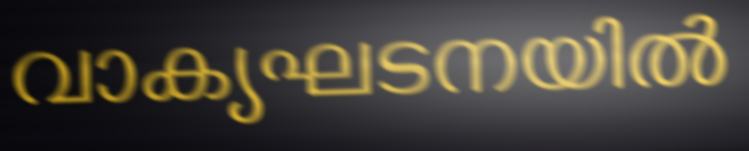
വാക്യഘടനയിൽ